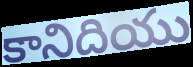
కానిదియు